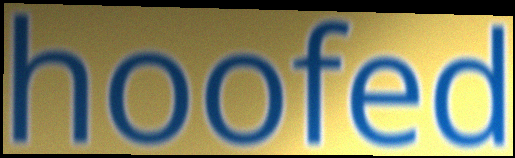
hoofed